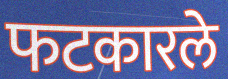
फटकारले